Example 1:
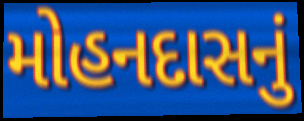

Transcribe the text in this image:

મોહનદાસનું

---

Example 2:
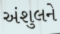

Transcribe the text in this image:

અંશુલને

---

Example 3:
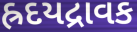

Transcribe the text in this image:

હ્રદયદ્રાવક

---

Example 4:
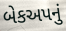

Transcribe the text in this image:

બેકઅપનું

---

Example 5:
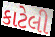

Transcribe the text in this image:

કાટેલી